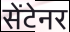
सेंटेनर